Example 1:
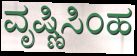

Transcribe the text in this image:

ವೃಷ್ಣಿಸಿಂಹ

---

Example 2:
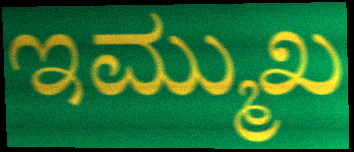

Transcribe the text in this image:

ಇಮ್ಮುಖ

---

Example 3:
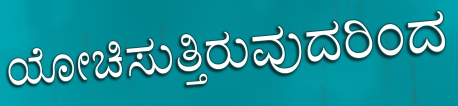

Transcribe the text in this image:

ಯೋಚಿಸುತ್ತಿರುವುದರಿಂದ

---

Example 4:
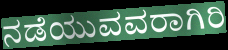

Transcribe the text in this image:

ನಡೆಯುವವರಾಗಿರಿ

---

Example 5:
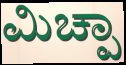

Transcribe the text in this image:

ಮಿಚ್ಪಾ